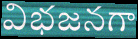
విభజనగా